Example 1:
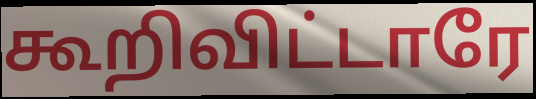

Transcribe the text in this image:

கூறிவிட்டாரே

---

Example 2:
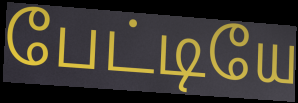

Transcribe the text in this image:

பேட்டியே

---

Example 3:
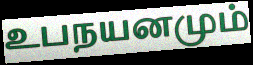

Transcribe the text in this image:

உபநயனமும்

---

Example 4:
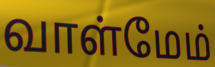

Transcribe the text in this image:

வாள்மேம்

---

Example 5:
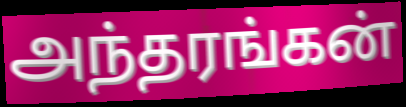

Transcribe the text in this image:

அந்தரங்கன்